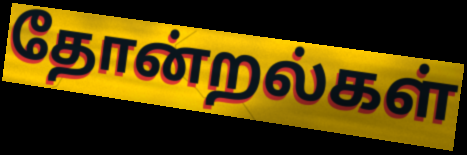
தோன்றல்கள்